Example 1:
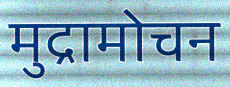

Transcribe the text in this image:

मुद्रामोचन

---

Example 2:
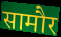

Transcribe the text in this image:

सामौर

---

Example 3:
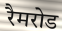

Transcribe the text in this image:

रैमरोड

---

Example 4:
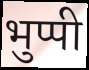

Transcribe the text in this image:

भुप्पी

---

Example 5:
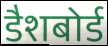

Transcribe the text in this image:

डैशबोर्ड